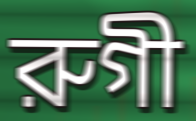
ৰুগী